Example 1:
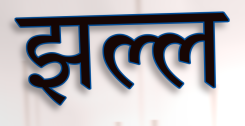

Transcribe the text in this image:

झल्ल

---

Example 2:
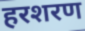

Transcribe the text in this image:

हरशरण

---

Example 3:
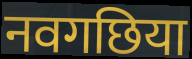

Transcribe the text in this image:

नवगछिया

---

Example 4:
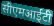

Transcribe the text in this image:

सीएमआईटी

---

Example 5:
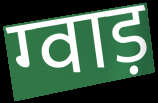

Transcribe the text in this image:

ग्वाड़